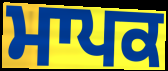
ਮਾਪਕ